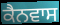
ਕੈਨਵਾਸ